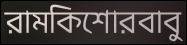
রামকিশোরবাবু